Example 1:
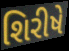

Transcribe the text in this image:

શિરીષે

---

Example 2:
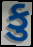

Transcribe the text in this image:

કુ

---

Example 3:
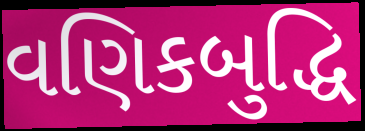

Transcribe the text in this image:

વણિકબુદ્ધિ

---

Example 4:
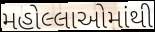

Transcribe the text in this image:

મહોલ્લાઓમાંથી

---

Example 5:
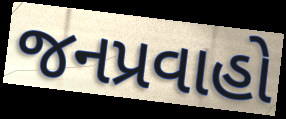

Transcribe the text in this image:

જનપ્રવાહો